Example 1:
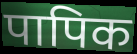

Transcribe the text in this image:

पापिक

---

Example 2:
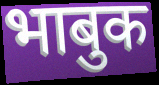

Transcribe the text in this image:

भाबुक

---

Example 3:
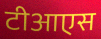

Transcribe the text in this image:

टीआएस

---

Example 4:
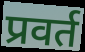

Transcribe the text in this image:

प्रवर्त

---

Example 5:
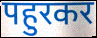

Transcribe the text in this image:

पहुरकर